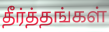
தீர்த்தங்கள்